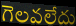
గెలవలేదు